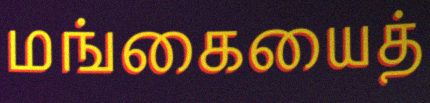
மங்கையைத்